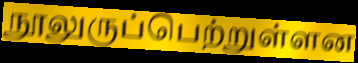
நூலுருப்பெற்றுள்ளன